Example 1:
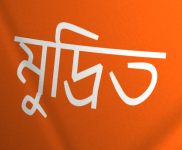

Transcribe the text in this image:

মুদ্রিত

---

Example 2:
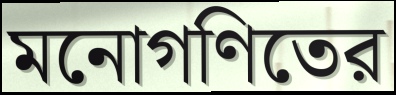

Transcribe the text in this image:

মনোগণিতের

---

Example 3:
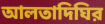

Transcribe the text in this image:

আলতাদিঘির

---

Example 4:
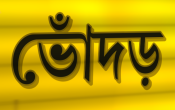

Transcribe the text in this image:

ভোঁদড়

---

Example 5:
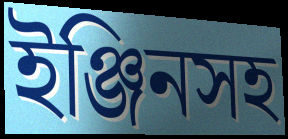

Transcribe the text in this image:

ইঞ্জিনসহ